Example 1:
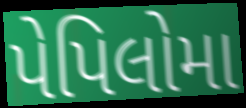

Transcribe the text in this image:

પેપિલોમા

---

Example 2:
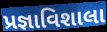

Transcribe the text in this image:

પ્રજ્ઞાવિશાલા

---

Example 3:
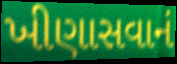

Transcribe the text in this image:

ખીણાસવાનં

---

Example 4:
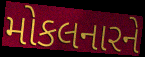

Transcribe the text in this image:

મોકલનારને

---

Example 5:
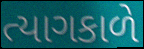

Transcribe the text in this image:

ત્યાગકાળે